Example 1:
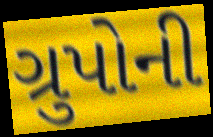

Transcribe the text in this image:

ગ્રુપોની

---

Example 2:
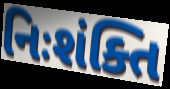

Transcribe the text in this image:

નિઃશંક્તિ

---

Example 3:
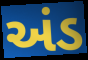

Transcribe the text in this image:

અંડ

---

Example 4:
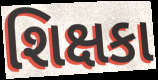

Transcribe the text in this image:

શિક્ષકા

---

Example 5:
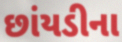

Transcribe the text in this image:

છાંયડીના